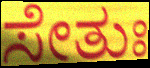
ಸೇತುಃ